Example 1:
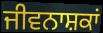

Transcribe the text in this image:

ਜੀਵਨਾਸ਼ਕਾਂ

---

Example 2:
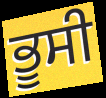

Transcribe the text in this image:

ਭੂਸੀ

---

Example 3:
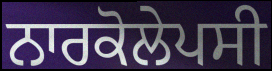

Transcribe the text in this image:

ਨਾਰਕੋਲੇਪਸੀ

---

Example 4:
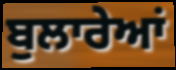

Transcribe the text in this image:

ਬੁਲਾਰੇਆਂ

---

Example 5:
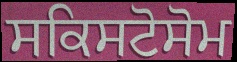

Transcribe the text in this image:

ਸਕਿਸਟੋਸੋਮ